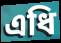
এধি